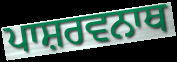
ਪਾਸ਼ਰਵਨਾਥ